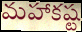
మహాకష్ట